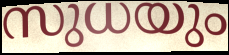
സുധയും